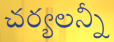
చర్యలన్నీ